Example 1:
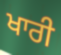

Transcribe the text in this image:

ਖਾਰੀ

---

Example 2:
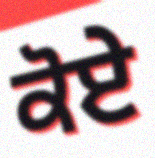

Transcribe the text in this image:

ਕੋਏ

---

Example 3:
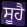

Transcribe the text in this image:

ਸੂਹੈ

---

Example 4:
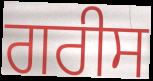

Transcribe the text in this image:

ਗਰੀਸ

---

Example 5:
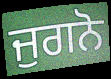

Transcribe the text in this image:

ਜੁਗਨੋ